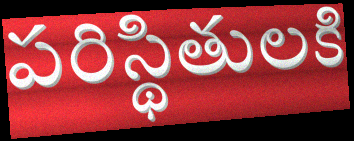
పరిస్థితులకి